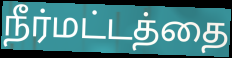
நீர்மட்டத்தை